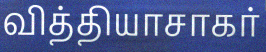
வித்தியாசாகர்